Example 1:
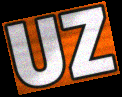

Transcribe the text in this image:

UZ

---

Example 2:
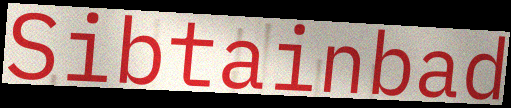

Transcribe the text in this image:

Sibtainbad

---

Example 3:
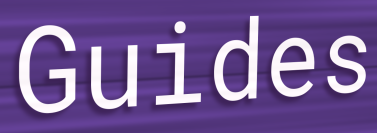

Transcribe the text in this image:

Guides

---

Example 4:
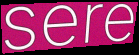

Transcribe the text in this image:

sere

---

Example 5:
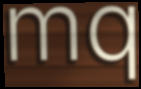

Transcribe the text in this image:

mq